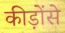
कीड़ोंसे